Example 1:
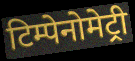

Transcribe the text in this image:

टिम्पेनोमेट्री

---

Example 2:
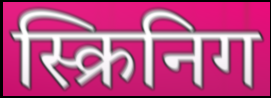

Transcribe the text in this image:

स्क्रिनिग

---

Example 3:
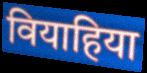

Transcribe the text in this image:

वियाहिया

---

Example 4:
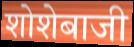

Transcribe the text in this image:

शोशेबाजी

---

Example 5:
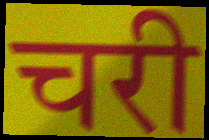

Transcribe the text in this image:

चरी